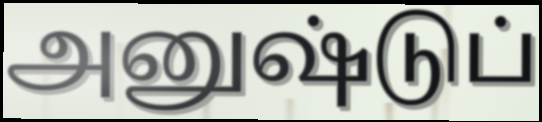
அனுஷ்டுப்